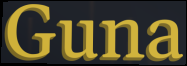
Guna